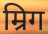
म्रिग